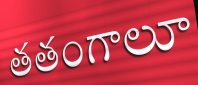
తతంగాలూ